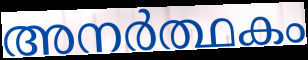
അനർത്ഥകം